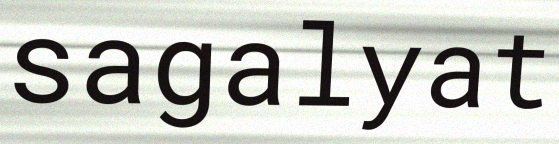
sagalyat